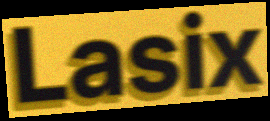
Lasix